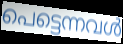
പെട്ടെന്നവൾ